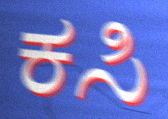
ಕಸಿ